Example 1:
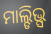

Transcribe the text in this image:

ମାଲ୍ଡିଭ୍ସ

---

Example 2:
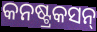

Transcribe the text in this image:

କନଷ୍ଟ୍ରକସନ୍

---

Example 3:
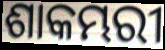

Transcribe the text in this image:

ଶାକମ୍ଭରୀ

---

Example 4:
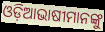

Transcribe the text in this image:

ଓଡ଼ିଆଭାଷୀମାନଙ୍କୁ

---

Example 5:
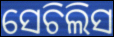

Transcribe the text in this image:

ସେଚିଲିସ